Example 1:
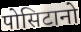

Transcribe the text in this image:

पोसिटानो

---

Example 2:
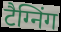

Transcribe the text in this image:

टैग्निंग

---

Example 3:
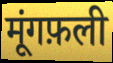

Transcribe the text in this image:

मूंगफ़ली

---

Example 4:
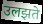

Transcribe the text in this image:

उलझते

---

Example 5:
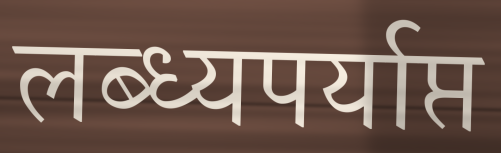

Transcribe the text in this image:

लब्ध्यपर्याप्त